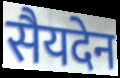
सैयदेन